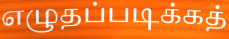
எழுதப்படிக்கத்